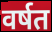
वर्षत